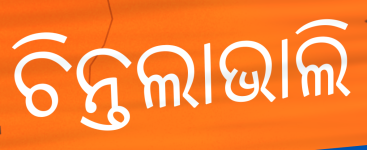
ଚିନ୍ତଲାଭାଲି